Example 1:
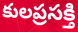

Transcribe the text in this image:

కులప్రసక్తి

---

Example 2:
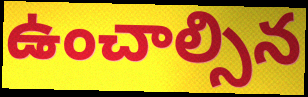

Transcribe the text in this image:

ఉంచాల్సిన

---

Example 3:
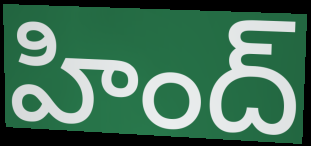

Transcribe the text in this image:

హింద్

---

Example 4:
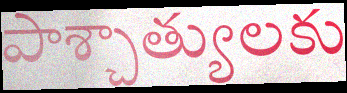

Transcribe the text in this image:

పాశ్చాత్యులకు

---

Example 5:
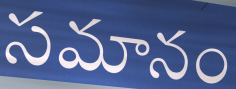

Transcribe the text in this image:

సమానం